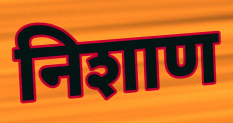
निशाण